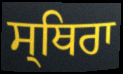
ਸ੍ਥਿਰਾ